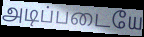
அடிப்படையே